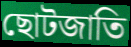
ছোটজাতি